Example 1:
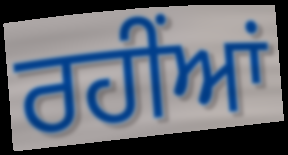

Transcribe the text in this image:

ਰਹੀਂਆਂ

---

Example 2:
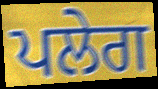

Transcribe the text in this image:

ਪਲੇਗ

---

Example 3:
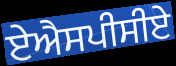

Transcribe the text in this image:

ਏਐਸਪੀਸੀਏ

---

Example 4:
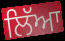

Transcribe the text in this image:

ਲਿੱਆ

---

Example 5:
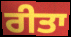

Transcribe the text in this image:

ਰੀਤਾ